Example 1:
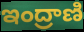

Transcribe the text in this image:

ఇంద్రాణి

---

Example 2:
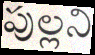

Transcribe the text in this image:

పుల్లని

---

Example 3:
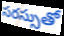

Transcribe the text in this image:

సరస్సుతో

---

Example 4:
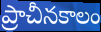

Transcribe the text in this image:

ప్రాచీనకాలం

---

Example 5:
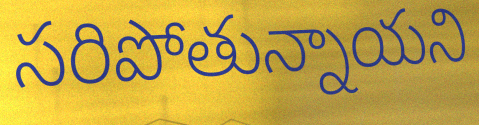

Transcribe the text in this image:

సరిపోతున్నాయని